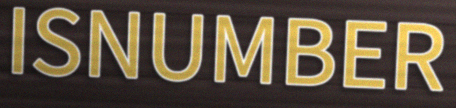
ISNUMBER